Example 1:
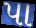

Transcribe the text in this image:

પા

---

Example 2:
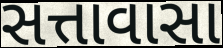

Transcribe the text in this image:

સત્તાવાસા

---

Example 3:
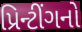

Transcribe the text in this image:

પ્રિન્ટીંગનો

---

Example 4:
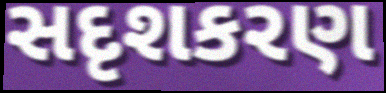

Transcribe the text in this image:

સદૃશકરણ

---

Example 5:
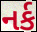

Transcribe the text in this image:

નર્ક